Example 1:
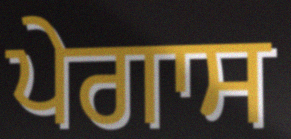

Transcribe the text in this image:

ਪੇਗਾਸ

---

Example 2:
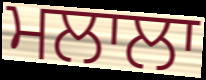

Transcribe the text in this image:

ਮਲਾਲਾ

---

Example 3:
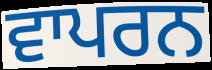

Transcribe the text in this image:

ਵਾਪਰਨ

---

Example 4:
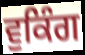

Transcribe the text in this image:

ਵੁਕਿੰਗ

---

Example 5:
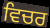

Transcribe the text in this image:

ਵਿਚਰ